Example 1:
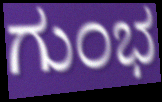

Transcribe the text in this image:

ಗುಂಭ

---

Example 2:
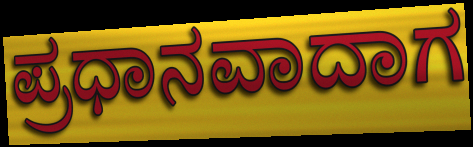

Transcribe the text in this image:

ಪ್ರಧಾನವಾದಾಗ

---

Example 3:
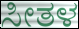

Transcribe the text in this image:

ಸೀತಳ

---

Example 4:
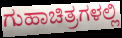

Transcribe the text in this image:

ಗುಹಾಚಿತ್ರಗಳಲ್ಲಿ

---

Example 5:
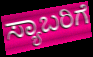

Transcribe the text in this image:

ಸ್ಯಾಬರಿಗೆ